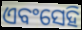
ଏବଂସେହି